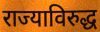
राज्याविरुद्ध